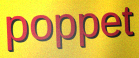
poppet